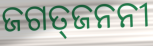
ଜଗତ୍‍ଜନନୀ